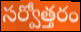
సర్వోత్తరం